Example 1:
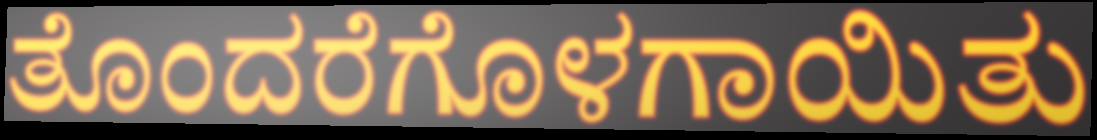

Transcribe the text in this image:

ತೊಂದರೆಗೊಳಗಾಯಿತು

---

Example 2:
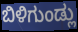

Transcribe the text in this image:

ಬಿಳಿಗುಂಡ್ಲು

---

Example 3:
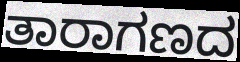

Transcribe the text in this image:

ತಾರಾಗಣದ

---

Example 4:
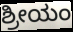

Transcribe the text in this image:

ಶ್ರೀಯಂ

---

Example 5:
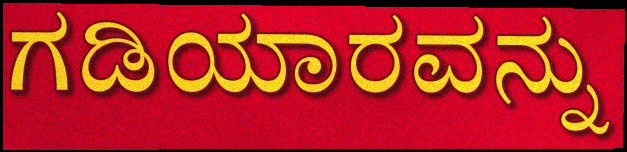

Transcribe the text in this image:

ಗಡಿಯಾರವನ್ನು